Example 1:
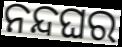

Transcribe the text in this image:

ନନ୍ଦଘର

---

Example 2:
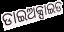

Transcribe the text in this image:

ଡାଇଅକ୍ସାଇଡ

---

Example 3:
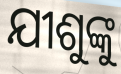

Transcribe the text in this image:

ଯୀଶୁଙ୍କୁ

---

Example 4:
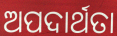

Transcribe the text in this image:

ଅପଦାର୍ଥତା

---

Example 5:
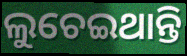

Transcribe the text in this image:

ଲୁଚେଇଥାନ୍ତି